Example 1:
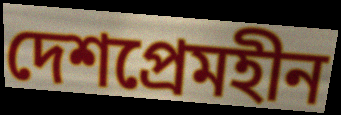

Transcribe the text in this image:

দেশপ্ৰেমহীন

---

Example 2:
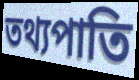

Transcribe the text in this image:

তথ্যপাতি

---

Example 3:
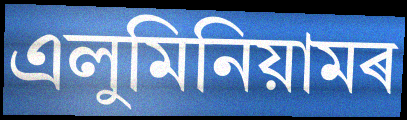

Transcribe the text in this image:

এলুমিনিয়ামৰ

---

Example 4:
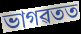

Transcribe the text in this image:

ভাগৱতত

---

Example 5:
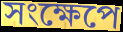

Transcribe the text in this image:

সংক্ষেপে